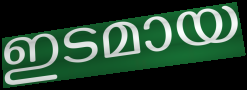
ഇടമായ